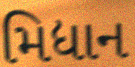
મિદ્યાન